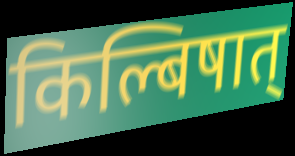
किल्बिषात्